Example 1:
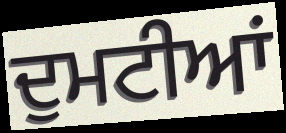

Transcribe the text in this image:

ਦੁਮਟੀਆਂ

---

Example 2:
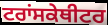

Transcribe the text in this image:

ਟਰਾਂਸਕੇਥੀਟਰ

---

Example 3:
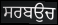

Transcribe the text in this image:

ਸਰਬਉਚ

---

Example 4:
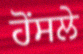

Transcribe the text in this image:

ਹੋਂਸਲੇ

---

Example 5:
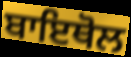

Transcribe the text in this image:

ਬਾਇਥੋਲ